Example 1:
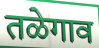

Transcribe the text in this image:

तळेगाव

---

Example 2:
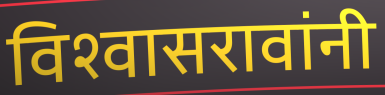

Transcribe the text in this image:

विश्वासरावांनी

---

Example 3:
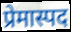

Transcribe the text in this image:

प्रेमास्पद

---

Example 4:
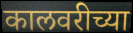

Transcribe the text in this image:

कालवरीच्या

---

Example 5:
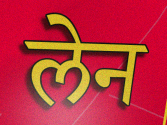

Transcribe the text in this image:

लेन